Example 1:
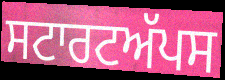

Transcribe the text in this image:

ਸਟਾਰਟਅੱਪਸ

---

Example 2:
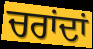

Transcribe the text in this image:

ਚਰਾਂਦਾਂ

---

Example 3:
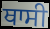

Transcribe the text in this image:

ਥਾਸੀ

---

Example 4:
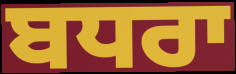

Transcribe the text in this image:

ਬਧਰਾ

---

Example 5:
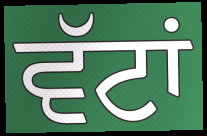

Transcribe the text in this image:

ਵੱਟਾਂ